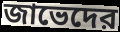
জাভেদের